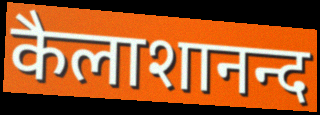
कैलाशानन्द